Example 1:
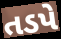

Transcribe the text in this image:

તડપે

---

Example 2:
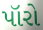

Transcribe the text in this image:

પૉરો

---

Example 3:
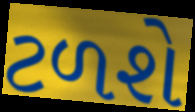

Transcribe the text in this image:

ટળશે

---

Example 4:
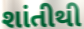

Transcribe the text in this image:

શાંતીથી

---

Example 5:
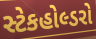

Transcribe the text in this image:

સ્ટેકહોલ્ડરો